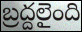
బ్రద్దలైంది